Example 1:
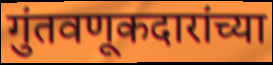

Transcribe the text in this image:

गुंतवणूकदारांच्या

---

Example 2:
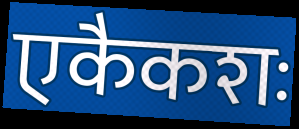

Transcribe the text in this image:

एकैकशः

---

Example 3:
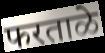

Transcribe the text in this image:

फरताळे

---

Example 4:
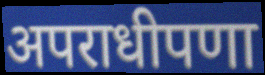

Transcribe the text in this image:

अपराधीपणा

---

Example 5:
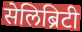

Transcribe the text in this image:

सेलिब्रिटी